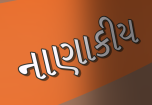
નાણાકીય